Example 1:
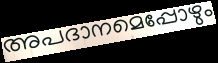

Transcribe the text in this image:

അപദാനമെപ്പോഴും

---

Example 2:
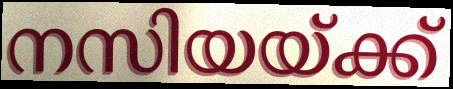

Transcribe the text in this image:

നസിയയ്ക്ക്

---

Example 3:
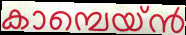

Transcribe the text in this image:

കാമ്പെയ്ൻ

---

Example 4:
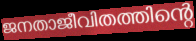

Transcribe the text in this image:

ജനതാജീവിതത്തിന്റെ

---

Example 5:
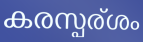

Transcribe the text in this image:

കരസ്പര്ശം